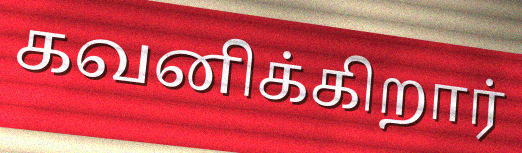
கவனிக்கிறார்